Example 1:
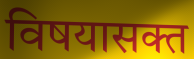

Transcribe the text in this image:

विषयासक्त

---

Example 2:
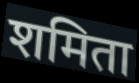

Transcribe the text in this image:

शमिता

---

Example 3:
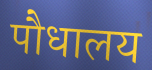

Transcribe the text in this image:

पौधालय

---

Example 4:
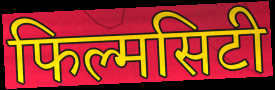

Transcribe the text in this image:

फिल्मसिटी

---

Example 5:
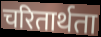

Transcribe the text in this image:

चरितार्थता